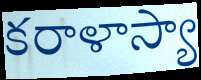
కరాళాస్యా